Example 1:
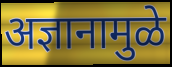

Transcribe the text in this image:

अज्ञानामुळे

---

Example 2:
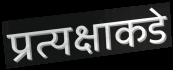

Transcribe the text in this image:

प्रत्यक्षाकडे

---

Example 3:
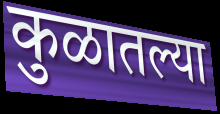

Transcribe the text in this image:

कुळातल्या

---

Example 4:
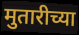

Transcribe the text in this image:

मुतारीच्या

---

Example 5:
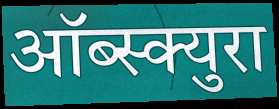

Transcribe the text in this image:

ऑब्स्क्युरा